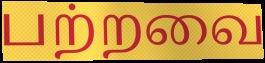
பற்றவை